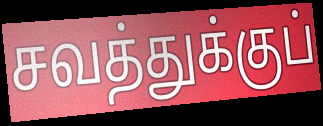
சவத்துக்குப்